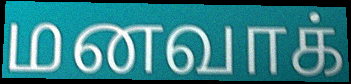
மனவாக்